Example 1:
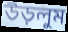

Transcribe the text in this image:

উড়লুম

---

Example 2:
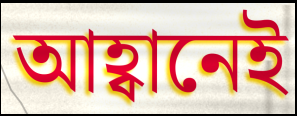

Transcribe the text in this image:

আহ্বানেই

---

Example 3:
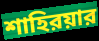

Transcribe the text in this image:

শাহিরয়ার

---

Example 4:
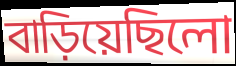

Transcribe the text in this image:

বাড়িয়েছিলো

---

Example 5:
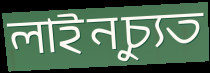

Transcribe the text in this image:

লাইনচ্যুত